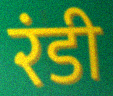
रंडी